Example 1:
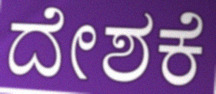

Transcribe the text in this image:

ದೇಶಕೆ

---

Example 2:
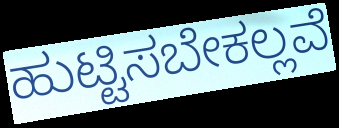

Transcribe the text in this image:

ಹುಟ್ಟಿಸಬೇಕಲ್ಲವೆ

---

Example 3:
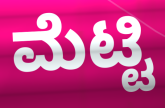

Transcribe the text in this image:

ಮೆಟ್ಟಿ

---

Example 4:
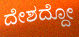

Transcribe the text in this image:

ದೇಶದ್ದೋ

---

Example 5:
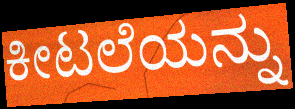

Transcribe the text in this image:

ಕೀಟಲೆಯನ್ನು